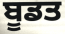
ਬੂਡਤ